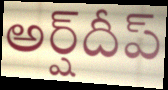
అర్ష్‌దీప్